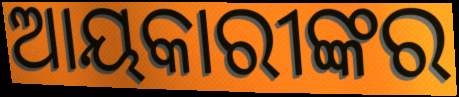
ଆୟକାରୀଙ୍କର